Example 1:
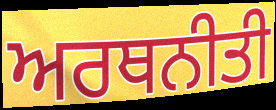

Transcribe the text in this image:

ਅਰਥਨੀਤੀ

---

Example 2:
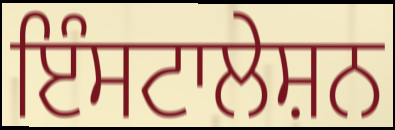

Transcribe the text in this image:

ਇੰਸਟਾਲੇਸ਼ਨ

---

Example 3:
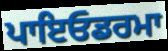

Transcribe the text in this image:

ਪਾਇਓਡਰਮਾ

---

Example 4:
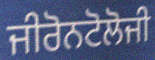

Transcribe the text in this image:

ਜੀਰੋਨਟੋਲੋਜੀ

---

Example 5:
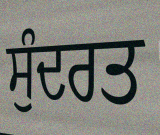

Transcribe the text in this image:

ਸੁੰਦਰਤ